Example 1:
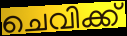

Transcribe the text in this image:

ചെവിക്ക്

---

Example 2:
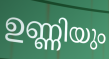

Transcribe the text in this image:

ഉണ്ണിയും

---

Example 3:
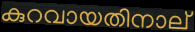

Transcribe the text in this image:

കുറവായതിനാല്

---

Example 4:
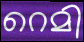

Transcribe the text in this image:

റെമി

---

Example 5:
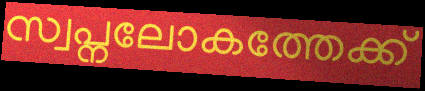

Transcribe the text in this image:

സ്വപ്നലോകത്തേക്ക്